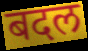
बदल